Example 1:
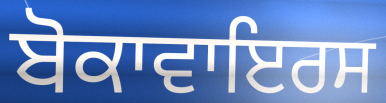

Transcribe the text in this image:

ਬੋਕਾਵਾਇਰਸ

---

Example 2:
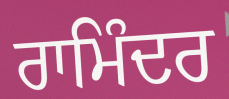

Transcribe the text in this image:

ਰਾਮਿੰਦਰ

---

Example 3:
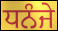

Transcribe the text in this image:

ਧਨੰਜੇ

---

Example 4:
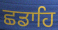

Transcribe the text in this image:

ਛਡਾਹਿ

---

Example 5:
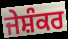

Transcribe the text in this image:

ਜੇਸ਼ੰਕਰ